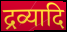
द्रव्यादि